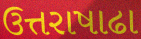
ઉત્તરાષાઢા